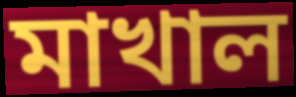
মাখাল